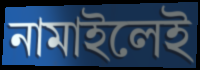
নামাইলেই